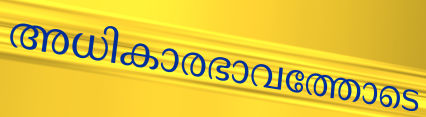
അധികാരഭാവത്തോടെ